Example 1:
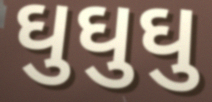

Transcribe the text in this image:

ઘુઘુઘુ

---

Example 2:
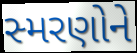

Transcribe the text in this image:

સ્મરણોને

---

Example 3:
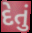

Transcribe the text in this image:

દેતું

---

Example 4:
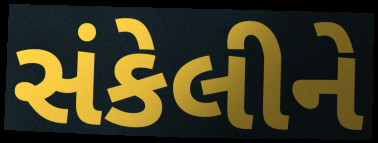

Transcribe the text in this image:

સંકેલીને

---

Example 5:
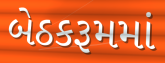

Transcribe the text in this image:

બેઠકરૂમમાં